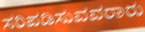
ಸರಿಪಡಿಸುವವರಾರು